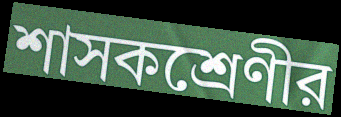
শাসকশ্রেণীর